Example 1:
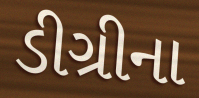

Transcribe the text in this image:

ડીગ્રીના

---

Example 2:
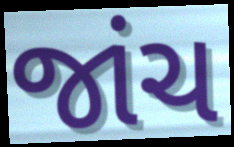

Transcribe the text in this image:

જાંચ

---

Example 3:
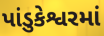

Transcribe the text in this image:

પાંડુકેશ્વરમાં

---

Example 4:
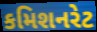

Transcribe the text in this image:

કમિશનરેટ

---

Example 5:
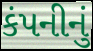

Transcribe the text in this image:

કંપનીનું